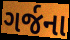
ગર્જના